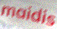
maidis